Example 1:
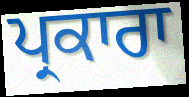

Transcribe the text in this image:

ਪ੍ਰਕਾਰਾ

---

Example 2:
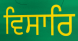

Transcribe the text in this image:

ਵਿਸਾਰਿ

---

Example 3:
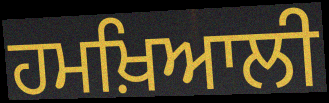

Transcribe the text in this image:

ਹਮਖ਼ਿਆਲੀ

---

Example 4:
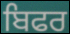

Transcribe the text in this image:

ਬਿਫਰ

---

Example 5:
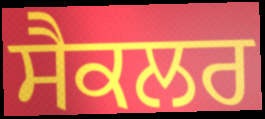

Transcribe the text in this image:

ਸੈਕਲਰ